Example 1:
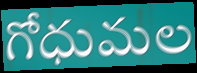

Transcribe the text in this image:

గోధుమల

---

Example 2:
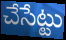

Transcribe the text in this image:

చేసేట్టు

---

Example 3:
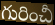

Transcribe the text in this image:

గురించీ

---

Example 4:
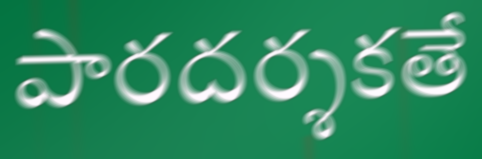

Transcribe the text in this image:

పారదర్శకతే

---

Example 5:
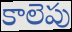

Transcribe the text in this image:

కాలెపు